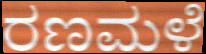
ರಣಮಳೆ